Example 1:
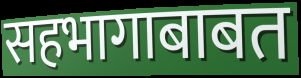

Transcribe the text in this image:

सहभागाबाबत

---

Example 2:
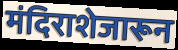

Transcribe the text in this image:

मंदिराशेजारून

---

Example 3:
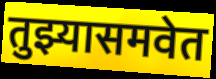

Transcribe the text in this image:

तुझ्यासमवेत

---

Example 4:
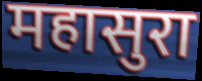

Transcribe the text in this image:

महासुरा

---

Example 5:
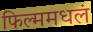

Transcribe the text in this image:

फिल्ममधलं